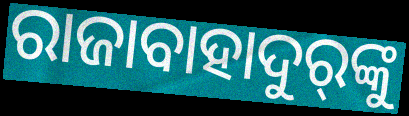
ରାଜାବାହାଦୁର୍‍ଙ୍କୁ